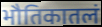
भौतिकातलं